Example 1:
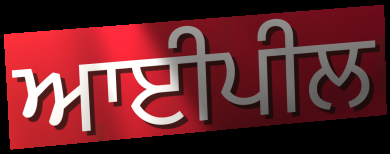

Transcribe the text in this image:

ਆਈਪੀਲ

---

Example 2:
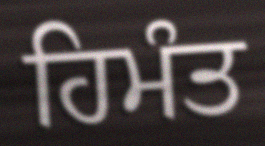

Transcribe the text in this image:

ਹਿਮੰਤ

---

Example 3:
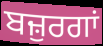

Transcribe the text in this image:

ਬਜ਼ੁਰਗਾਂ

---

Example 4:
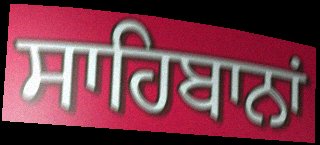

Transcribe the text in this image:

ਸਾਹਿਬਾਨਾਂ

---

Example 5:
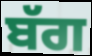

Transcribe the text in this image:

ਬੱਗ